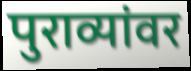
पुराव्यांवर